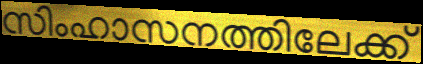
സിംഹാസനത്തിലേക്ക്